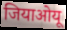
जियाओयू